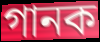
গানক